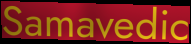
Samavedic